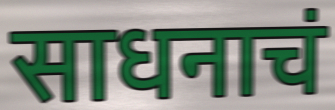
साधनाचं